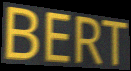
BERT